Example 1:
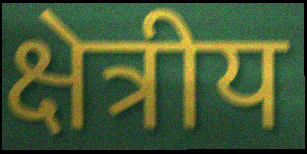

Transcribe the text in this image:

क्षेत्रीय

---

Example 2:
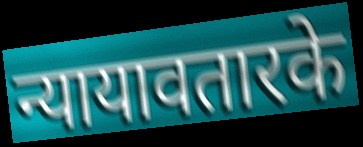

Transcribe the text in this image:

न्यायावतारके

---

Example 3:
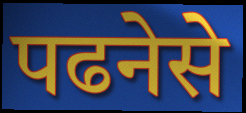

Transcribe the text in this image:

पढनेसे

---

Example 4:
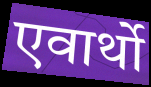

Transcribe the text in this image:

एवार्थो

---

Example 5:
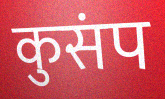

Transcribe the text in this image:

कुसंप